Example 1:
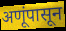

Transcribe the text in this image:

अणूंपासून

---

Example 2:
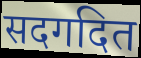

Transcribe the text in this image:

सदगदित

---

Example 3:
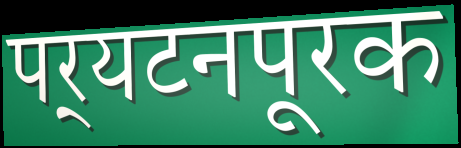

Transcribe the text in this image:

पर्यटनपूरक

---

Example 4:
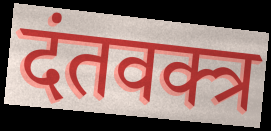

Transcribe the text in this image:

दंतवक्त्र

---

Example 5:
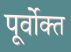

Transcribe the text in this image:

पूर्वोक्त